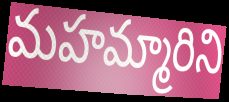
మహమ్మారిని